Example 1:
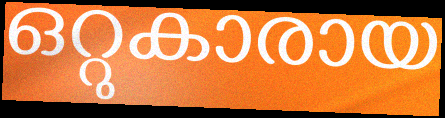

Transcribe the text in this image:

ഒറ്റുകാരായ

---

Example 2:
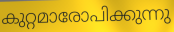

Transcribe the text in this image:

കുറ്റമാരോപിക്കുന്നു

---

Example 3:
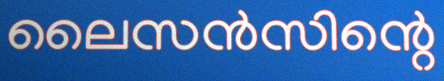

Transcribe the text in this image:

ലൈസൻസിന്റെ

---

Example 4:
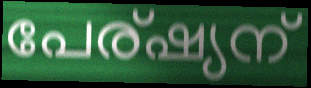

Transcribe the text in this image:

പേര്ഷ്യന്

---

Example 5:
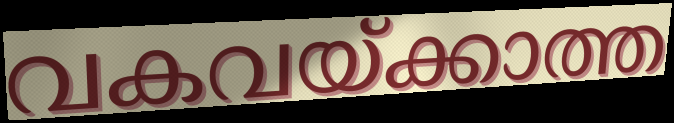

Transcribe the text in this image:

വകവയ്ക്കാത്ത